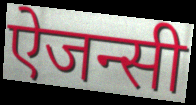
ऐजन्सी